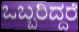
ಒಬ್ಬರಿದ್ದರೆ